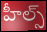
హీల్స్